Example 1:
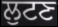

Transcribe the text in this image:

ਲੁਟਣ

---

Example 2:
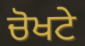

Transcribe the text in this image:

ਚੋਖਟੇ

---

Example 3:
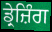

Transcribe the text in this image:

ਡ੍ਰੇਜ਼ਿੰਗ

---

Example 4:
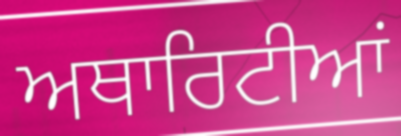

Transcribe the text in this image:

ਅਥਾਰਿਟੀਆਂ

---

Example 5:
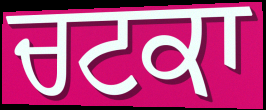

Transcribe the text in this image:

ਚਟਕਾ